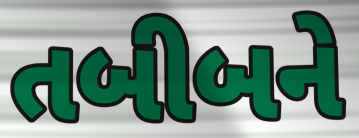
તબીબને